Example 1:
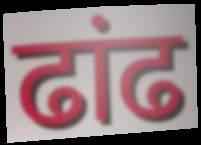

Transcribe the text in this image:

ढांढ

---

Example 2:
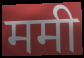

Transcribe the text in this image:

ममी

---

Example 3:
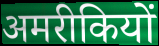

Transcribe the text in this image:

अमरीकियों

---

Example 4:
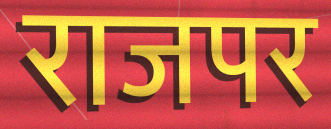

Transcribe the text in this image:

राजपर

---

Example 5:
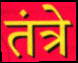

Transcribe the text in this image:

तंत्रे